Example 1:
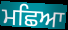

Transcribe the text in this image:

ਮਛਿਆ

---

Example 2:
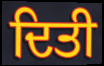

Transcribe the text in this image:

ਦਿਤੀ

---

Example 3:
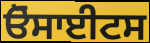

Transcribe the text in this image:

ਓੋਸਾਈਟਸ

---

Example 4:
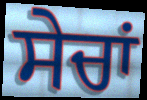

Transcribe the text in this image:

ਸੇਚਾਂ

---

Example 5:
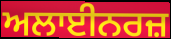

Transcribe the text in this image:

ਅਲਾਈਨਰਜ਼